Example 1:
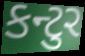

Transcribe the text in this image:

કન્ટુર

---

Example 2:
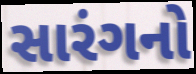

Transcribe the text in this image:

સારંગનો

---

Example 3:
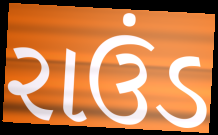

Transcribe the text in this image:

રાઉંડ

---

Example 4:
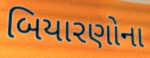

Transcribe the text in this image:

બિયારણોના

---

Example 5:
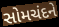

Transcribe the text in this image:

સોમચંદને